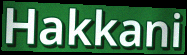
Hakkani